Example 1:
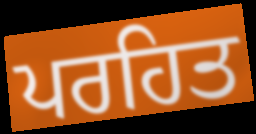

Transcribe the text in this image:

ਪਰਹਿਤ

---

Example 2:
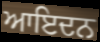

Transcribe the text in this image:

ਆਇਦਨ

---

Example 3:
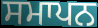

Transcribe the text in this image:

ਸਮਾਪਨ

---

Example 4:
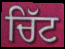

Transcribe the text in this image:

ਚਿੱਟ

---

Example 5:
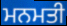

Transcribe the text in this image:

ਮਨਮਤੀ